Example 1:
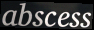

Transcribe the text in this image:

abscess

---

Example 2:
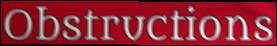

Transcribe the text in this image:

Obstructions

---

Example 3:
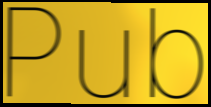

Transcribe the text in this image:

Pub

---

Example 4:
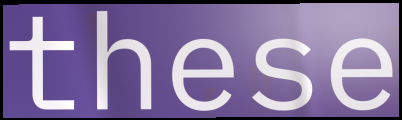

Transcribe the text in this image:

these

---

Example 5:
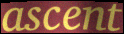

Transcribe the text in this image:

ascent